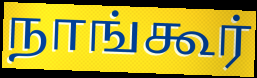
நாங்கூர்